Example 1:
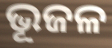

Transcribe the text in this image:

ଭୂଜଳ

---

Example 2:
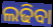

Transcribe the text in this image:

ଲଢିବା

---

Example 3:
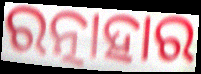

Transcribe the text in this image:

ରତ୍ନାହାର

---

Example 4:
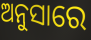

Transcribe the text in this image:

ଅନୁସାରେ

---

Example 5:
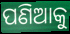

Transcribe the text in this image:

ପଣିଆକୁ